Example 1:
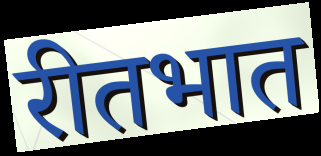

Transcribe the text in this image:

रीतभात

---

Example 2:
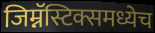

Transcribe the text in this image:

जिम्नॅस्टिक्समध्येच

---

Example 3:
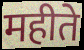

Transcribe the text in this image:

महीते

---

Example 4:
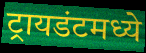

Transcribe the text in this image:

ट्रायडंटमध्ये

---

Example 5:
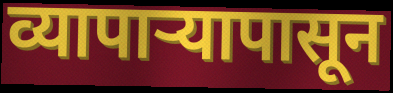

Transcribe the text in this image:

व्यापाऱ्यापासून